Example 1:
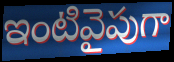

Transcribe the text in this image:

ఇంటివైపుగా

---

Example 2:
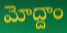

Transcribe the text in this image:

మోద్దాం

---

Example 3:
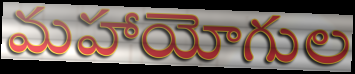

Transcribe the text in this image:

మహాయోగుల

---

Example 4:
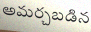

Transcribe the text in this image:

అమర్చబడిన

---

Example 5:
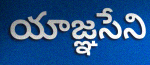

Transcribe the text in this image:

యాజ్ఞసేని